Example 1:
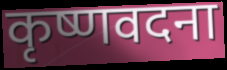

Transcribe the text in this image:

कृष्णवदना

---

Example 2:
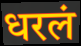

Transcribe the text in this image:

धरलं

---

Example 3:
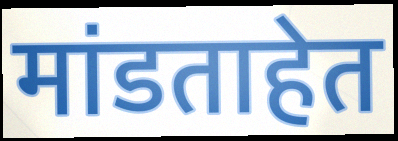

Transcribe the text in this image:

मांडताहेत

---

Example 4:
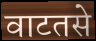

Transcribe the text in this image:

वाटतसे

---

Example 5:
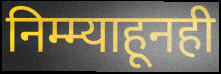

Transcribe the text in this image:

निम्म्याहूनही